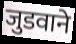
जुडवाने